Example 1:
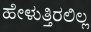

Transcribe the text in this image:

ಹೇಳುತ್ತಿರಲಿಲ್ಲ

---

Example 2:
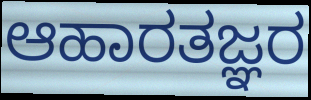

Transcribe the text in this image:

ಆಹಾರತಜ್ಞರ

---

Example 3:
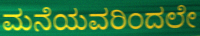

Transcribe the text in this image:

ಮನೆಯವರಿಂದಲೇ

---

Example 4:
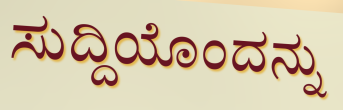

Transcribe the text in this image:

ಸುದ್ದಿಯೊಂದನ್ನು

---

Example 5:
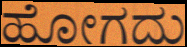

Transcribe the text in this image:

ಹೋಗದು